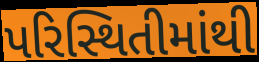
પરિસ્થિતીમાંથી